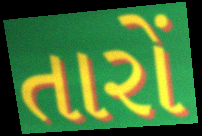
તારોં